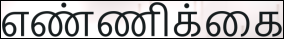
எண்ணிக்கை